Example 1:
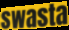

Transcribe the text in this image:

swasta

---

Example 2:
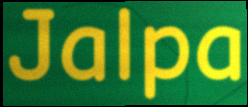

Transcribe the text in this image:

Jalpa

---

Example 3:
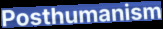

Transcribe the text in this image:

Posthumanism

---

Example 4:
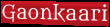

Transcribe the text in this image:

Gaonkaari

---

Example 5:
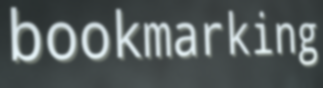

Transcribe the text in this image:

bookmarking